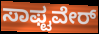
ಸಾಫ್ಟವೇರ್